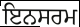
ਇਨਸਰਮ